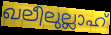
ഖലീലുല്ലാഹ്